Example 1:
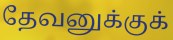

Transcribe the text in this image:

தேவனுக்குக்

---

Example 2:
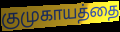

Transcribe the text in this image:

குமுகாயத்தை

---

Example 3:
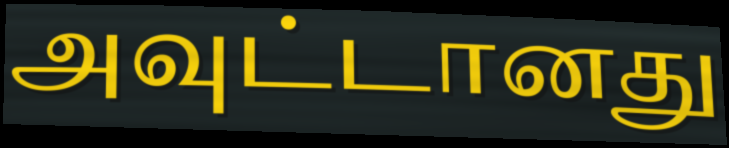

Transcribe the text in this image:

அவுட்டானது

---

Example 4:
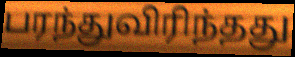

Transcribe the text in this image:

பரந்துவிரிந்தது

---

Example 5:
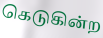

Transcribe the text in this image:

கெடுகின்ற